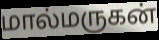
மால்மருகன்